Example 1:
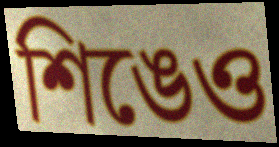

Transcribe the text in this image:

শিঙেও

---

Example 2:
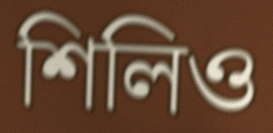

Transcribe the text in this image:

শিলিও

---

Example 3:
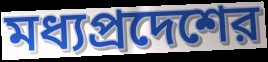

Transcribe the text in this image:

মধ্যপ্রদেশের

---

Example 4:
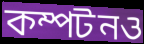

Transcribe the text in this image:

কম্পটনও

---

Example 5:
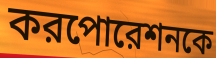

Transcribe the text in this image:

করপোরেশনকে